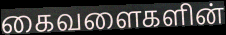
கைவளைகளின்